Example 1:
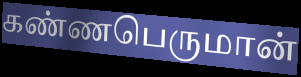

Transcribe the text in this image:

கண்ணபெருமான்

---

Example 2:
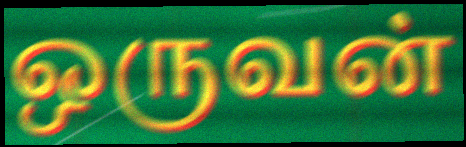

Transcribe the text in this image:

ஒருவன்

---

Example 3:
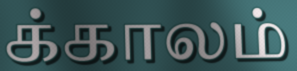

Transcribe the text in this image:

க்காலம்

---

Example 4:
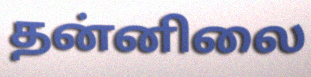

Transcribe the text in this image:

தன்னிலை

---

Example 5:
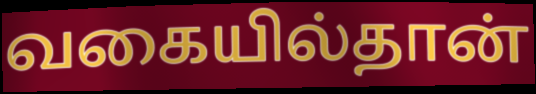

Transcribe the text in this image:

வகையில்தான்